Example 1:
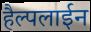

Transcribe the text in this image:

हैल्पलाईन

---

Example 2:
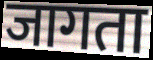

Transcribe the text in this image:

जागता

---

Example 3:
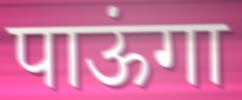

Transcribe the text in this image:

पाऊंगा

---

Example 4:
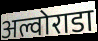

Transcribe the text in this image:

अल्वोराडा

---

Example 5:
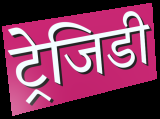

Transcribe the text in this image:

ट्रेजिडी